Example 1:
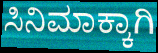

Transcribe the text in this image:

ಸಿನಿಮಾಕ್ಕಾಗಿ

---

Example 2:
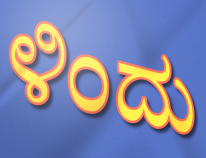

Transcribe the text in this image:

ಳಿಂದು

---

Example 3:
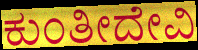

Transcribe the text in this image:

ಕುಂತೀದೇವಿ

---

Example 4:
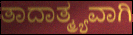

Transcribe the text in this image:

ತಾದಾತ್ಮ್ಯವಾಗಿ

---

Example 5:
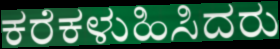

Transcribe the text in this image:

ಕರೆಕಳುಹಿಸಿದರು